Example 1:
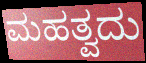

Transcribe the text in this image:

ಮಹತ್ವದು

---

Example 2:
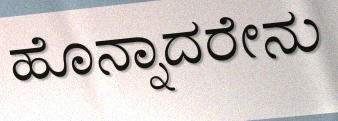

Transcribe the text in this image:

ಹೊನ್ನಾದರೇನು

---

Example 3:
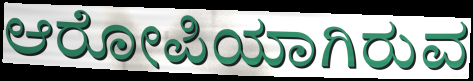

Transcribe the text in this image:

ಆರೋಪಿಯಾಗಿರುವ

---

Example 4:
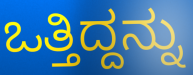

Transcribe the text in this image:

ಒತ್ತಿದ್ದನ್ನು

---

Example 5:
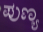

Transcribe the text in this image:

ಪುಣ್ಯ